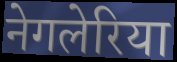
नेगलेरिया